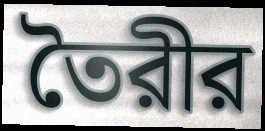
তৈরীর